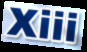
Xiii